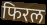
फिरल